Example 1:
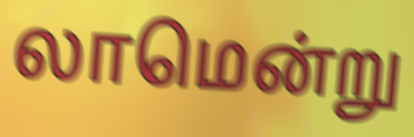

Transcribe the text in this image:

லாமென்று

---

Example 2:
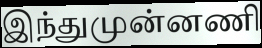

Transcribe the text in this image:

இந்துமுன்னணி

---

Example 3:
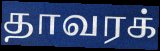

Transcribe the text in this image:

தாவரக்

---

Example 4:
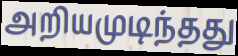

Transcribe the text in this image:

அறியமுடிந்தது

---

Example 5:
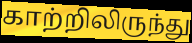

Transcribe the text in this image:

காற்றிலிருந்து